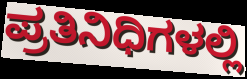
ಪ್ರತಿನಿಧಿಗಳಲ್ಲಿ